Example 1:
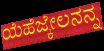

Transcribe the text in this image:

ಯೆಹೆಜ್ಕೇಲನನ್ನ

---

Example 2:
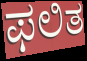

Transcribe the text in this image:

ಫಲಿತ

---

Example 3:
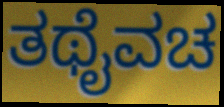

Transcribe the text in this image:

ತಥೈವಚ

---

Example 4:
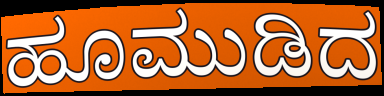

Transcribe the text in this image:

ಹೂಮುಡಿದ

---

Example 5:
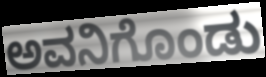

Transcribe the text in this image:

ಅವನಿಗೊಂಡು